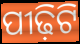
ପୀଢ଼ିଟି